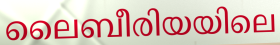
ലൈബീരിയയിലെ